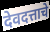
देवदत्ताचे